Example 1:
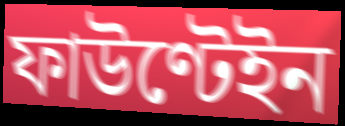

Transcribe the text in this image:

ফাউণ্টেইন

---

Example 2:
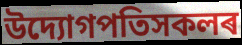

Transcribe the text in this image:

উদ্যোগপতিসকলৰ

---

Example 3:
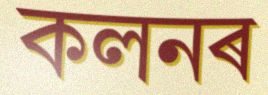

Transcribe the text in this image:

কলনৰ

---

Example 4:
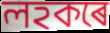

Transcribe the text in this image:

লহকৰে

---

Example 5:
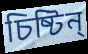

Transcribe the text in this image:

চিষ্টিন্